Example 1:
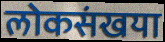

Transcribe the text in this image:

लोकसंखया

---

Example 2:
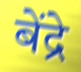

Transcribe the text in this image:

बेंद्रे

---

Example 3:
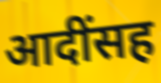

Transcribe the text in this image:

आदींसह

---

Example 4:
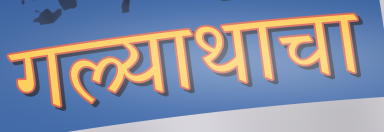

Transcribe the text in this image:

गल्याथाचा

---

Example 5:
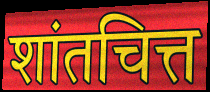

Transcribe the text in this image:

शांतचित्त